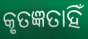
କୃତଜ୍ଞତାହିଁ